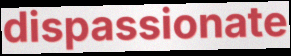
dispassionate